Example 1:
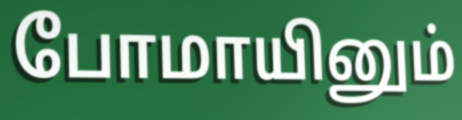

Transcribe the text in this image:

போமாயினும்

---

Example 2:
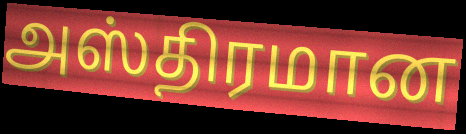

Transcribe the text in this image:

அஸ்திரமான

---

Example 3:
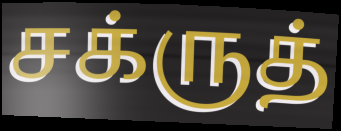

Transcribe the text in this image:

சக்ருத்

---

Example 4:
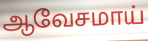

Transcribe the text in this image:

ஆவேசமாய்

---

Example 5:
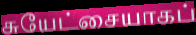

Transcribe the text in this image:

சுயேட்சையாகப்